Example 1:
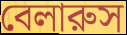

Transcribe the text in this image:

বেলারুস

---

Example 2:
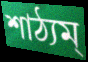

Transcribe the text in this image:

শাঠ্যম্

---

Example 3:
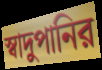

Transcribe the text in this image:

স্বাদুপানির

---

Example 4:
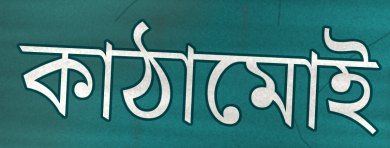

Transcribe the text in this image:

কাঠামোই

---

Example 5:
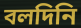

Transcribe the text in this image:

বলদিনি